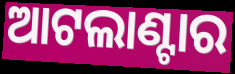
ଆଟଲାଣ୍ଟାର